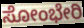
ಸೋಂಭೇರಿ